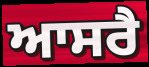
ਆਸਰੈ